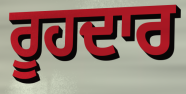
ਰੂਹਦਾਰ